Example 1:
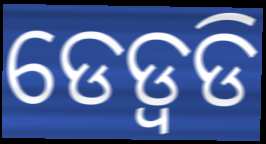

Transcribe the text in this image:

ଡେଡ୍ବଡି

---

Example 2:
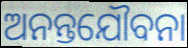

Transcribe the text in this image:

ଅନନ୍ତଯୌବନା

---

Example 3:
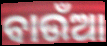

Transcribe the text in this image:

ବାଉଁଆ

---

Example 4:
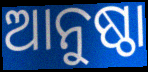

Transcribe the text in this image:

ଆନୁଷ୍ଠା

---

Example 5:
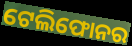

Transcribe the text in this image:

ଟେଲିଫୋନର